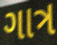
ગાત્ર